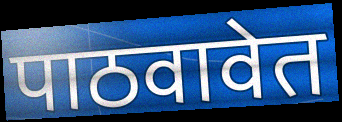
पाठवावेत